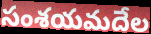
సంశయమదేల